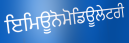
ਇਮਿਊਨੋਮੋਡਿਊਲੇਟਰੀ